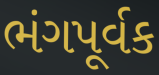
ભંગપૂર્વક